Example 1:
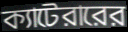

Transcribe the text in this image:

ক্যাটেরারের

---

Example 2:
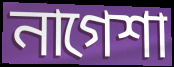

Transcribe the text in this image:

নাগেশা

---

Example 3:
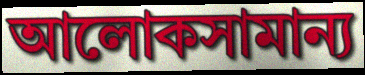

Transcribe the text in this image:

আলোকসামান্য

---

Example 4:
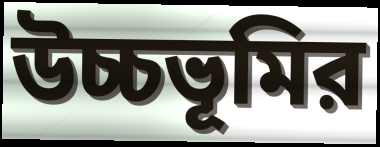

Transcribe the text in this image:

উচ্চভূমির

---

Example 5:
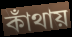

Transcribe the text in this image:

কাঁথায়